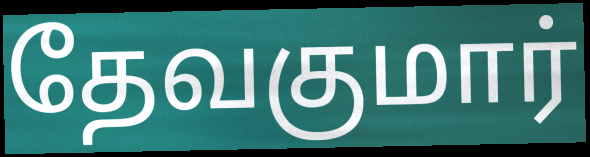
தேவகுமார்